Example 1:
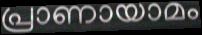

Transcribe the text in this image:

പ്രാണായാമം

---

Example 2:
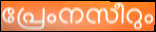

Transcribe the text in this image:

പ്രേംനസീറും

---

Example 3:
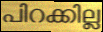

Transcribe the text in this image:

പിറക്കില്ല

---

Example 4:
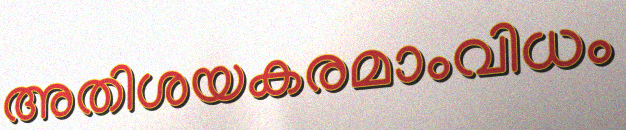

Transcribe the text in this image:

അതിശയകരമാംവിധം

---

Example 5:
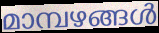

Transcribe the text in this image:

മാമ്പഴങ്ങൾ